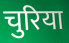
चुरिया